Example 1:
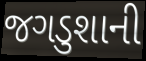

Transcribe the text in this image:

જગડુશાની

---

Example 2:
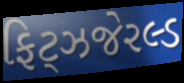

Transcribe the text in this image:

ફિટ્ઝજેરલ્ડ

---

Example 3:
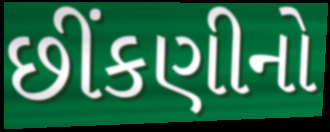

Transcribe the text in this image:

છીંકણીનો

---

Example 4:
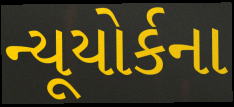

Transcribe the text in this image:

ન્યૂયોર્કના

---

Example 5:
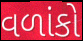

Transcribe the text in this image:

વળાંકો